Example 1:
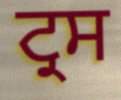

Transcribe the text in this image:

ਟ੍ਰਸ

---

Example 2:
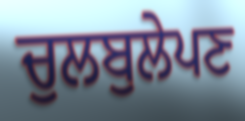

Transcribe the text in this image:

ਚੁਲਬੁਲੇਪਣ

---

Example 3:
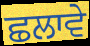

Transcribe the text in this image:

ਛਲਾਵੇ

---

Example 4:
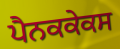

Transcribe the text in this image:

ਪੈਨਕਕੇਕਸ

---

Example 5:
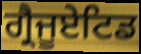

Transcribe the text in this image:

ਗ੍ਰੈਜੂਏਟਿਡ